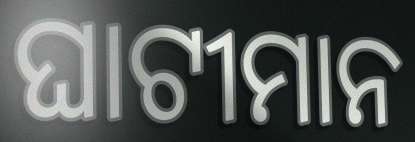
ଘାଟୀମାନ